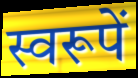
स्वरूपें